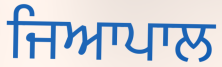
ਜਿਆਪਾਲ